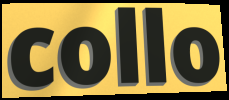
collo